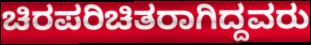
ಚಿರಪರಿಚಿತರಾಗಿದ್ದವರು